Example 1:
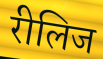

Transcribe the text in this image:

रीलिज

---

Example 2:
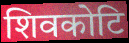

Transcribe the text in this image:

शिवकोटि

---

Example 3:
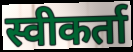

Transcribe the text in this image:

स्वीकर्ता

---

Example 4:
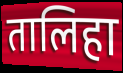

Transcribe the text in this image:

तालिहा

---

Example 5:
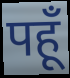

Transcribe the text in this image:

पहूँ